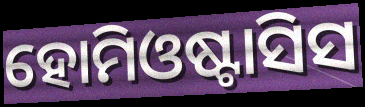
ହୋମିଓଷ୍ଟାସିସ